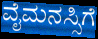
ವೈಮನಸ್ಸಿಗೆ